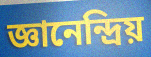
জ্ঞানেন্দ্ৰিয়